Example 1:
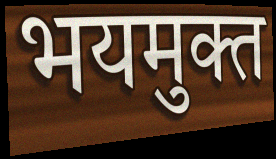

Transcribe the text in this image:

भयमुक्‍त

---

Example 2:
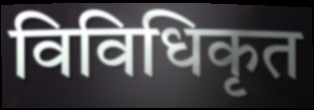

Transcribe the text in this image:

विविधिकृत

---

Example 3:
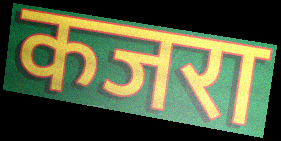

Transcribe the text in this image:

कजरा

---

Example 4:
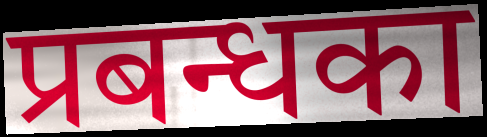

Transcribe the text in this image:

प्रबन्धका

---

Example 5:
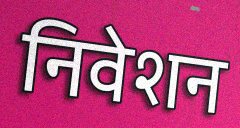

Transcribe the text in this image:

निवेशन